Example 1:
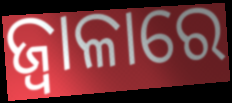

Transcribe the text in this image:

ଜ୍ଵାଳାରେ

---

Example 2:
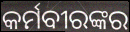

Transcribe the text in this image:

କର୍ମବୀରଙ୍କର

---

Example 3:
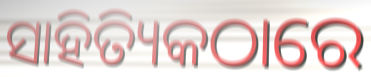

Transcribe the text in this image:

ସାହିତ୍ୟିକଠାରେ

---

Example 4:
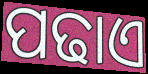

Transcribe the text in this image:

ପଢାଏ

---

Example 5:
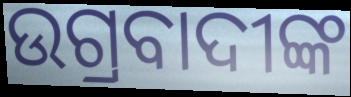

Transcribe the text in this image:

ଉଗ୍ରବାଦୀଙ୍କ